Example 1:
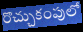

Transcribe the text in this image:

రొచ్చుకంపులో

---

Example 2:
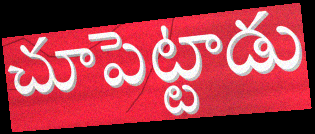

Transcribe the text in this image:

చూపెట్టాడు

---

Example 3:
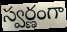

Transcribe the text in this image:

స్వర్ణంగా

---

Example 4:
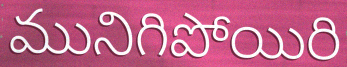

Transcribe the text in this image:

మునిగిపోయిరి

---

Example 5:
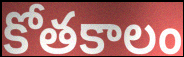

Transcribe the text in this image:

కోతకాలం